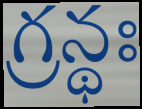
గ్రన్థః